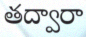
తద్వారా